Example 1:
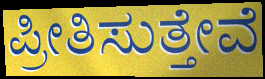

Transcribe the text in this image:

ಪ್ರೀತಿಸುತ್ತೇವೆ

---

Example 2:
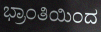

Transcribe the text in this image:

ಭ್ರಾಂತಿಯಿಂದ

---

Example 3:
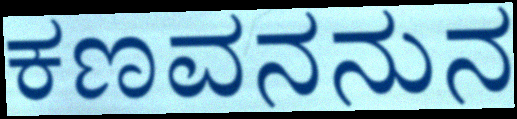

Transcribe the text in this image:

ಕಣವನನುನ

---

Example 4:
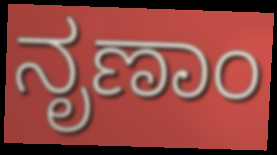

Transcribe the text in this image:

ನೃಣಾಂ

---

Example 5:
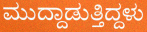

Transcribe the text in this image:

ಮುದ್ದಾಡುತ್ತಿದ್ದಳು